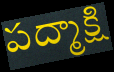
పద్మాక్షి